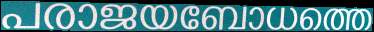
പരാജയബോധത്തെ